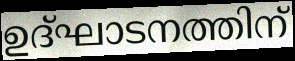
ഉദ്ഘാടനത്തിന്